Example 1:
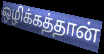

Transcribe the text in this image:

ஒழிக்கத்தான்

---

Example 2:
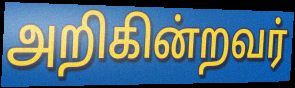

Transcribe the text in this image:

அறிகின்றவர்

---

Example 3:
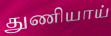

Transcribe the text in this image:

துணியாய்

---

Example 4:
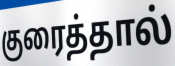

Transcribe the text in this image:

குரைத்தால்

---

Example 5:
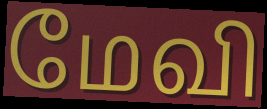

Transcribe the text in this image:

மேவி